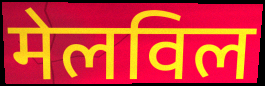
मेलविल